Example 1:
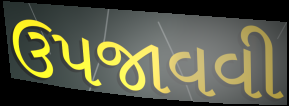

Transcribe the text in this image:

ઉપજાવવી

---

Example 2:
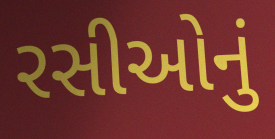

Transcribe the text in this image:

રસીઓનું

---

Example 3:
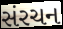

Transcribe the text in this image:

સંરચન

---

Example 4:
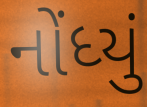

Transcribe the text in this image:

નોંધ્યું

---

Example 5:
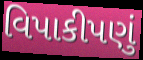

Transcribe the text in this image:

વિપાકીપણું